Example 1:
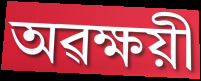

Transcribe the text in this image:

অৱক্ষয়ী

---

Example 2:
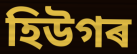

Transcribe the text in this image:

হিউগৰ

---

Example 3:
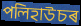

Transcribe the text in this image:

পলিহাউচৰ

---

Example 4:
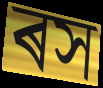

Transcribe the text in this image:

ৰস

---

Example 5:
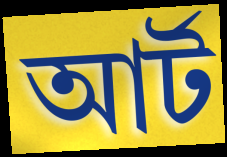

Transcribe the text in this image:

আৰ্ট